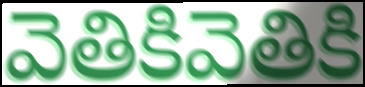
వెతికివెతికి